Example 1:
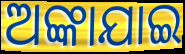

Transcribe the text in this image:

ଅଙ୍କାଯାଇ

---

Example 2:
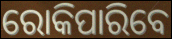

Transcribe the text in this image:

ରୋକିପାରିବେ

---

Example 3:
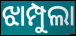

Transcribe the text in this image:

ଝାମ୍ପୁଲା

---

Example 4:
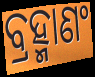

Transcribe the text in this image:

ବ୍ରହ୍ମାଣଂ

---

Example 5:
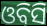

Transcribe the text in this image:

ଓବିସି